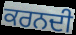
ਕਰਨਦੀ